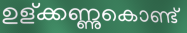
ഉള്ക്കണ്ണുകൊണ്ട്